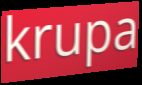
krupa